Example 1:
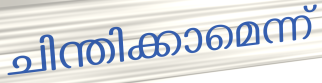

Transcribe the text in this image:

ചിന്തിക്കാമെന്ന്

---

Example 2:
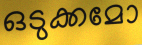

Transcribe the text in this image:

ഒടുക്കമോ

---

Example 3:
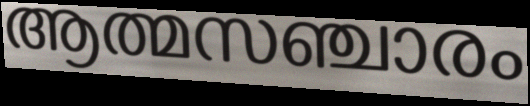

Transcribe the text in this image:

ആത്മസഞ്ചാരം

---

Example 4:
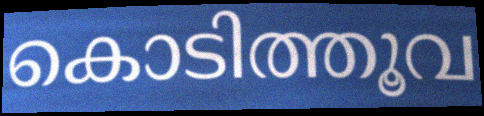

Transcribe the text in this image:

കൊടിത്തൂവ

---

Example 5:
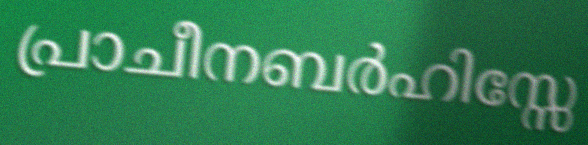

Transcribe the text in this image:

പ്രാചീനബർഹിസ്സേ